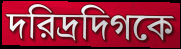
দরিদ্রদিগকে